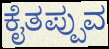
ಕೈತಪ್ಪುವ